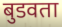
बुडवता